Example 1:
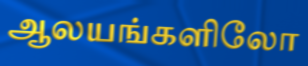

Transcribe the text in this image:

ஆலயங்களிலோ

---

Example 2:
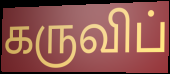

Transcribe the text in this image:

கருவிப்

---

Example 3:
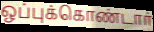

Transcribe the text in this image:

ஒப்புக்கொண்டார்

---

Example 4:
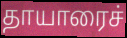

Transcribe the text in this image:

தாயாரைச்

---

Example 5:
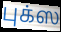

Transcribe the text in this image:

புக்ஸ